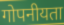
गोपनीयता